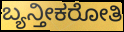
ಬ್ಯನ್ತೀಕರೋತಿ